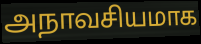
அநாவசியமாக